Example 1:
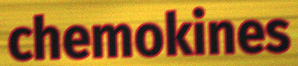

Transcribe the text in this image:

chemokines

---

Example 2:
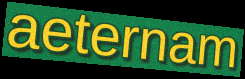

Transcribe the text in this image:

aeternam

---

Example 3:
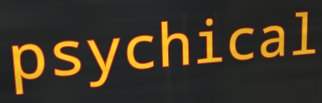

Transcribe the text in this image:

psychical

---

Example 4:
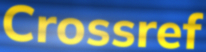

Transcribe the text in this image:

Crossref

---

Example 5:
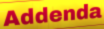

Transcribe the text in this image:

Addenda